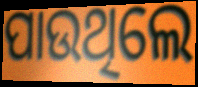
ପାଉଥିଲେ